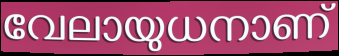
വേലായുധനാണ്